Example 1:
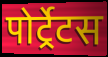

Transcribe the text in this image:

पोर्ट्रेटस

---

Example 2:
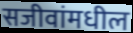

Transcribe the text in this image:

सजीवांमधील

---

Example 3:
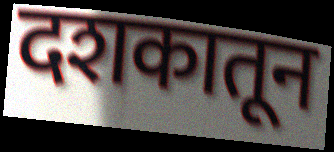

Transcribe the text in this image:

दशकातून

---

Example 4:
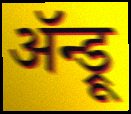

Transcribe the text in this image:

ॲन्ड्रू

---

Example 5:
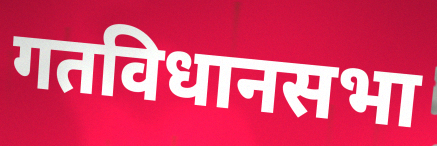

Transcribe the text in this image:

गतविधानसभा